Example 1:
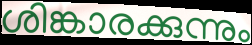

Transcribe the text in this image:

ശിങ്കാരക്കുന്നും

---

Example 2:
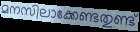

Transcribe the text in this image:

മനസിലാക്കേണ്ടതുണ്ട്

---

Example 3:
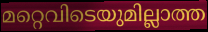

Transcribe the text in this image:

മറ്റെവിടെയുമില്ലാത്ത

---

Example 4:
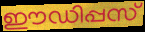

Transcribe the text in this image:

ഈഡിപ്പസ്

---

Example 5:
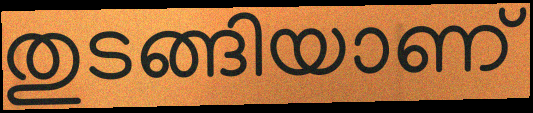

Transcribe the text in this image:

തുടങ്ങിയാണ്